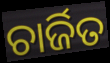
ଚାର୍ଜିତ